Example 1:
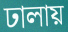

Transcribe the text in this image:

ঢালায়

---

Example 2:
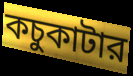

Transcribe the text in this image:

কচুকাটার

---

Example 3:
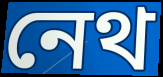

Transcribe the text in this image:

নেথ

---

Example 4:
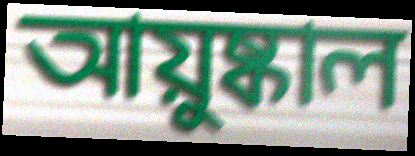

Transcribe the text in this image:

আয়ুষ্কাল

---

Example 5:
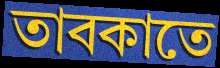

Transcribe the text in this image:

তাবকাতে